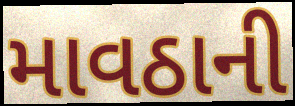
માવઠાની